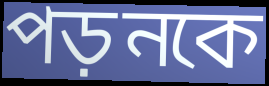
পড়নকে